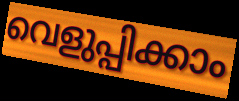
വെളുപ്പിക്കാം